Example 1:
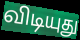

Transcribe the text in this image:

விடியுது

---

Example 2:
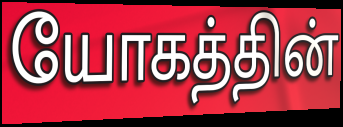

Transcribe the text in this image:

யோகத்தின்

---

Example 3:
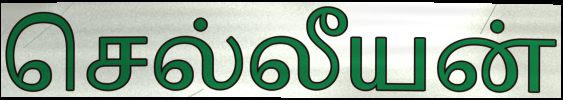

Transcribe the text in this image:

செல்லீயன்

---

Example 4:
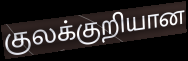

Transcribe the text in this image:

குலக்குறியான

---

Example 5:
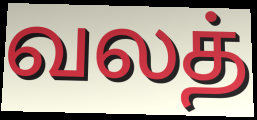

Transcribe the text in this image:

வலத்